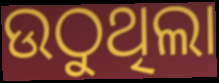
ଉଠୁଥିଲା